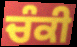
ਚੰਕੀ